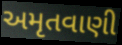
અમૃતવાણી